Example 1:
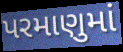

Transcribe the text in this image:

પરમાણુમાં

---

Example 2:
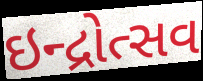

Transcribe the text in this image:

ઇન્દ્રોત્સવ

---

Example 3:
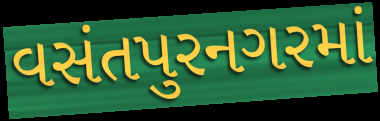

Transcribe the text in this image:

વસંતપુરનગરમાં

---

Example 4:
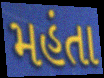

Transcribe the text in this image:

મહંતા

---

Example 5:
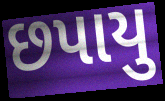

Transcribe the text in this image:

છપાયુ